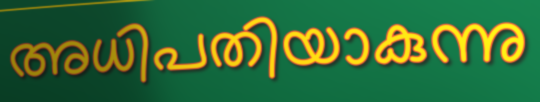
അധിപതിയാകുന്നു